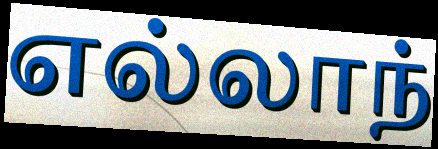
எல்லாந்